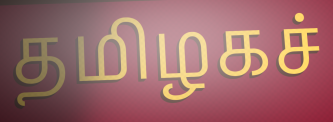
தமிழகச்